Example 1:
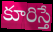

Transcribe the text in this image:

కూరిస్తే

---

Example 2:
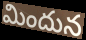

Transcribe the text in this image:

మిందున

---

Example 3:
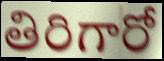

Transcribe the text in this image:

తిరిగారో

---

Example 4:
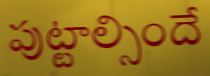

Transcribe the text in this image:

పుట్టాల్సిందే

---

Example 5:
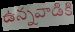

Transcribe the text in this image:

ఉన్నవాడికి